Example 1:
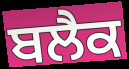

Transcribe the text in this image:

ਬਲੈਕ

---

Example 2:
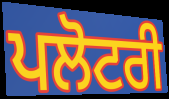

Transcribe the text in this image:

ਪਲੋਟਰੀ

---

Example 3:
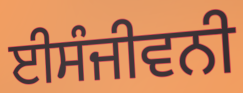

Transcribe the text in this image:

ਈਸੰਜੀਵਨੀ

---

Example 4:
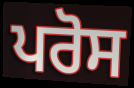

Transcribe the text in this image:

ਪਰੋਸ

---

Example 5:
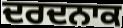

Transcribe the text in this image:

ਦਰਦਨਾਕ